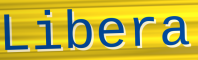
Libera